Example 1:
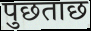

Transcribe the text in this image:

पुछताछ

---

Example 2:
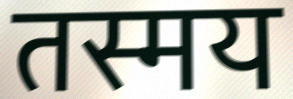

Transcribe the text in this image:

तस्मय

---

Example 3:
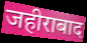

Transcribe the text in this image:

जहीराबाद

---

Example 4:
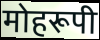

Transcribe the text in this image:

मोहरूपी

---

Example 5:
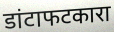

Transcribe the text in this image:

डांटाफटकारा